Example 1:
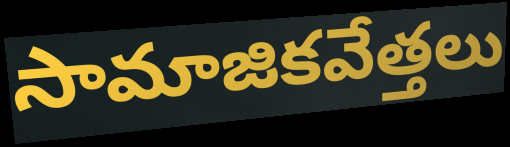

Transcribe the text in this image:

సామాజికవేత్తలు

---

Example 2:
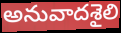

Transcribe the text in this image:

అనువాదశైలి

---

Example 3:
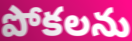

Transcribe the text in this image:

పోకలను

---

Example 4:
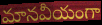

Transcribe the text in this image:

మానవీయంగా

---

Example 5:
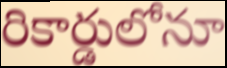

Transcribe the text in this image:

రికార్డులోనూ